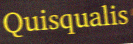
Quisqualis